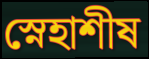
স্নেহাশীষ